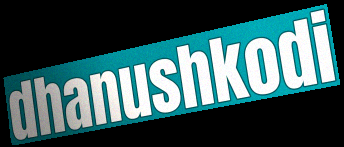
dhanushkodi